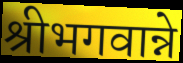
श्रीभगवान्ने